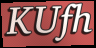
KUfh